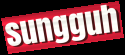
sungguh